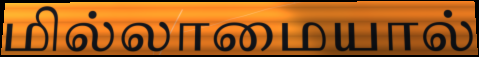
மில்லாமையால்